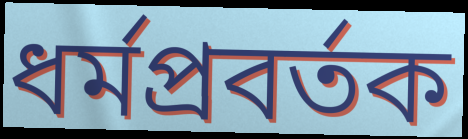
ধর্মপ্রবর্তক